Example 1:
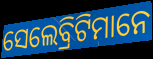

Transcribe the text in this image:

ସେଲେବ୍ରିଟିମାନେ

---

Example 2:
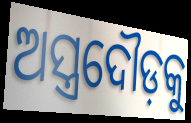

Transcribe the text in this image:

ଅସ୍ତ୍ରଦୌଡ଼କୁ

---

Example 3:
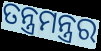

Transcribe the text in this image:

ତନ୍ତ୍ରମନ୍ତ୍ରର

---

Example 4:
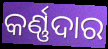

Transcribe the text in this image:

କର୍ଣ୍ଣଦାର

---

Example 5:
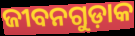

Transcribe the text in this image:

ଜୀବନଗୁଡ଼ାକ